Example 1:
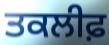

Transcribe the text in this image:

ਤਕਲੀਫ਼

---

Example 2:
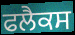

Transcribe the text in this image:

ਫਲੈਕਸ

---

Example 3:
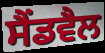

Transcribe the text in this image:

ਸੈਂਡਵੈਲ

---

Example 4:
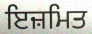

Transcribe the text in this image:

ਇਜ਼ਮਿਤ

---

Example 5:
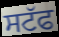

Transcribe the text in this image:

ਸਟੱਫ